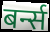
बर्न्स